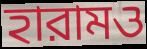
হারামও